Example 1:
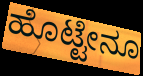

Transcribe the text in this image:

ಹೊಟ್ಟೇನೂ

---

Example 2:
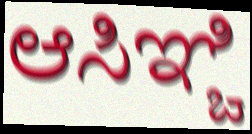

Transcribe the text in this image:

ಆಸಿಞ್ಚಿ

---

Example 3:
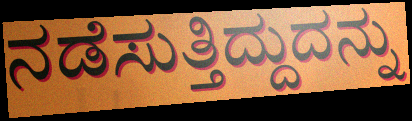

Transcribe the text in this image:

ನಡೆಸುತ್ತಿದ್ದುದನ್ನು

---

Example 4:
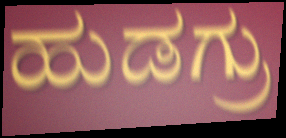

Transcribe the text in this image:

ಹುಡಗ್ರು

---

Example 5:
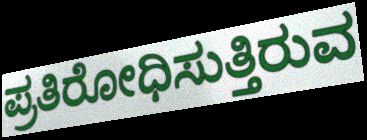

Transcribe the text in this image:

ಪ್ರತಿರೋಧಿಸುತ್ತಿರುವ